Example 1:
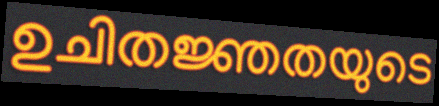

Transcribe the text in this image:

ഉചിതജ്ഞതയുടെ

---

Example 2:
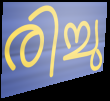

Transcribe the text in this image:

രിച്ചു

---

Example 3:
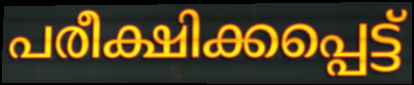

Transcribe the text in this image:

പരീക്ഷിക്കപ്പെട്ട്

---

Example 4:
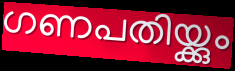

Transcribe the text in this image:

ഗണപതിയ്ക്കും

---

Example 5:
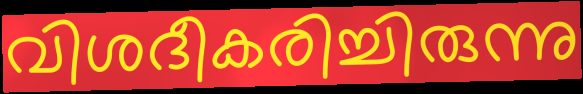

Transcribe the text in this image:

വിശദീകരിച്ചിരുന്നു